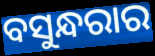
ବସୁନ୍ଧରାର